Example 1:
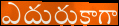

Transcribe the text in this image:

ఎదురుకాగా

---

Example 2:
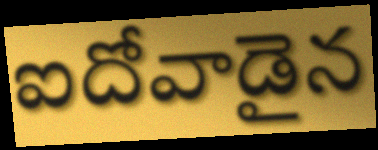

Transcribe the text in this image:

ఐదోవాడైన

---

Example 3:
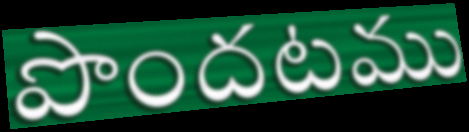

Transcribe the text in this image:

పొందటము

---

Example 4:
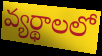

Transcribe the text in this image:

వ్యర్థాలలో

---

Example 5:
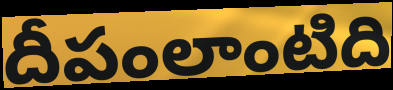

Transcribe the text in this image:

దీపంలాంటిది